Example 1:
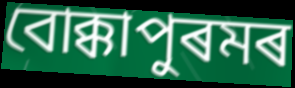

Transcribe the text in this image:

বোক্কাপুৰমৰ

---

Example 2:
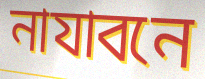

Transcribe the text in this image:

নাযাবনে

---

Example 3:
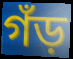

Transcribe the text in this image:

গঁড়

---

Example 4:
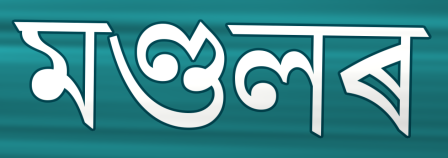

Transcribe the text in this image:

মণ্ডলৰ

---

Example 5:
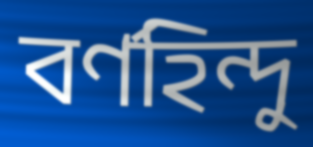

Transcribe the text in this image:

বৰ্ণহিন্দু